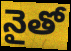
నైతో